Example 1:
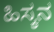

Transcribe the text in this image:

ಹಿಸ್ಕನ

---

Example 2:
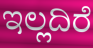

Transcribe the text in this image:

ಇಲ್ಲದಿರೆ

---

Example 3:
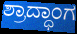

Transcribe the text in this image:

ಶ್ರಾದ್ಧಾಂಗ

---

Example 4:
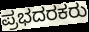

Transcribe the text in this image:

ಪ್ರಭದರಕರು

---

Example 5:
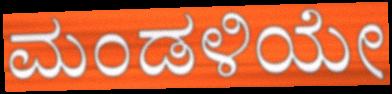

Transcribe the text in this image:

ಮಂಡಳಿಯೇ